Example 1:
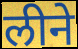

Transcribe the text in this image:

लीने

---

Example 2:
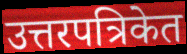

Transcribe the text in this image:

उत्तरपत्रिकेत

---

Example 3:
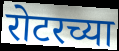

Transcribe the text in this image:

रोटरच्या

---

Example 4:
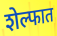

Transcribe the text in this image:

शेल्फात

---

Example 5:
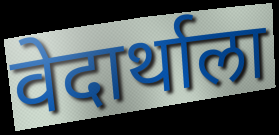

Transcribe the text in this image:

वेदार्थाला